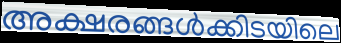
അക്ഷരങ്ങൾക്കിടയിലെ